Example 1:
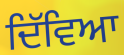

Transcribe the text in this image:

ਦਿੱਵਿਆ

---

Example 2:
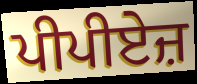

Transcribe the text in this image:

ਪੀਪੀਏਜ਼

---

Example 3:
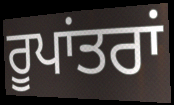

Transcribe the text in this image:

ਰੂਪਾਂਤਰਾਂ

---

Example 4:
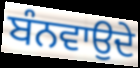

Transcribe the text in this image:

ਬੰਨਵਾਉਦੇ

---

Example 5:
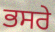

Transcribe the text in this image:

ਭਸਰੇ